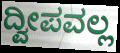
ದ್ವೀಪವಲ್ಲ